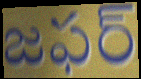
జఫర్